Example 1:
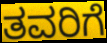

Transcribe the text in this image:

ತವರಿಗೆ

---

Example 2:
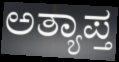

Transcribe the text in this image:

ಅತ್ಯಾಪ್ತ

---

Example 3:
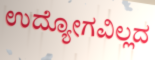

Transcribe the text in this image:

ಉದ್ಯೋಗವಿಲ್ಲದ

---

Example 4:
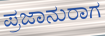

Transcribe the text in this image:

ಪ್ರಜಾನುರಾಗ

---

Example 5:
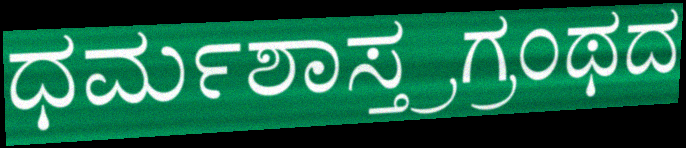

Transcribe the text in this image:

ಧರ್ಮಶಾಸ್ತ್ರಗ್ರಂಥದ